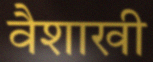
वैशाखी